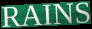
RAINS